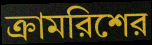
ক্রামরিশের